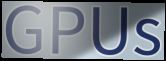
GPUs